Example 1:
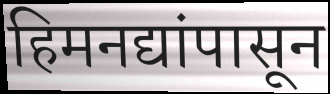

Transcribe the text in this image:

हिमनद्यांपासून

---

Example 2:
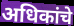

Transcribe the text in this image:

अधिकांचे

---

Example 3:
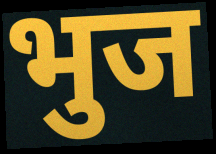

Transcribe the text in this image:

भुज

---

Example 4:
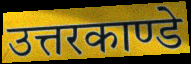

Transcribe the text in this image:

उत्तरकाण्डे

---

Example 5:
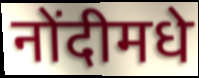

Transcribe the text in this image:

नोंदीमधे